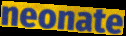
neonate